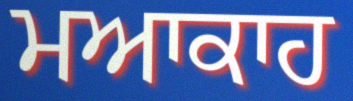
ਮਆਕਾਹ